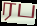
ரப